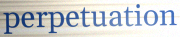
perpetuation